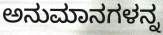
ಅನುಮಾನಗಳನ್ನ